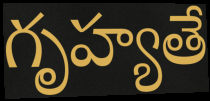
గృహ్యతే